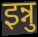
इन्नु